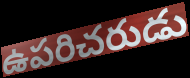
ఉపరిచరుడు